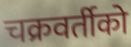
चक्रवर्तीको